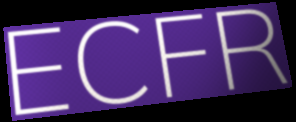
ECFR